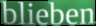
blieben